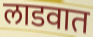
लाडवात